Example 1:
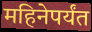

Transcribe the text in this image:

महिनेपर्यंत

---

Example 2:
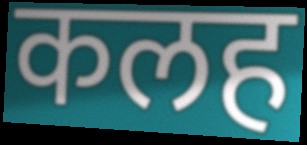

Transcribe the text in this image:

कलह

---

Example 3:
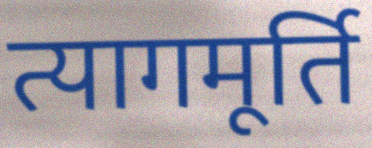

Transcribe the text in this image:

त्यागमूर्ति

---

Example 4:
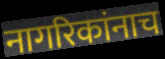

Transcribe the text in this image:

नागरिकांनाच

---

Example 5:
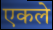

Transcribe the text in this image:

एकले